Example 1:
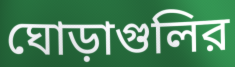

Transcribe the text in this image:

ঘোড়াগুলির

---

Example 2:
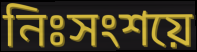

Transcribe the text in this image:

নিঃসংশয়ে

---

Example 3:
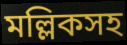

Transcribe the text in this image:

মল্লিকসহ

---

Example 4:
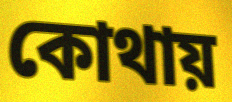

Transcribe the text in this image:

কোথায়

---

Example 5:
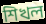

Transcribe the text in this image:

শিখল